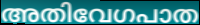
അതിവേഗപാത